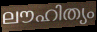
ലൗഹിത്യം